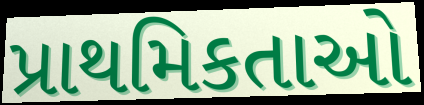
પ્રાથમિકતાઓ